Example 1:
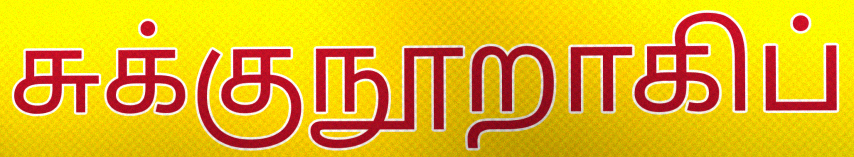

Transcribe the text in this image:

சுக்குநூறாகிப்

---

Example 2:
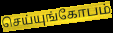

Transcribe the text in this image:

செய்யுங்கோபம்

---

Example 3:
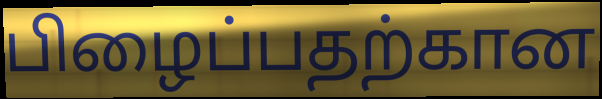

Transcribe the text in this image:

பிழைப்பதற்கான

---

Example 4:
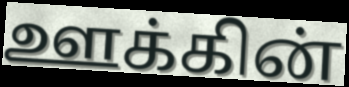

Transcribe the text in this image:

ஊக்கின்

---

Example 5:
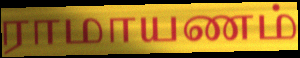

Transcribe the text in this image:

ராமாயணம்